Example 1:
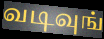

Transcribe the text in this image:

வடிவுங்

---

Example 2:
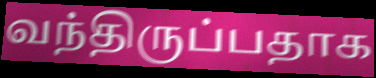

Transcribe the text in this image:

வந்திருப்பதாக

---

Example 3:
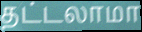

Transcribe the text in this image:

தட்டலாமா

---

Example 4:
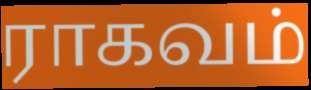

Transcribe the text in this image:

ராகவம்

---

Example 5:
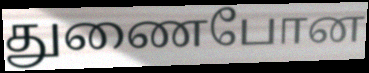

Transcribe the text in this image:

துணைபோன